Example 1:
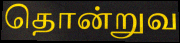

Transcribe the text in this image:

தொன்றுவ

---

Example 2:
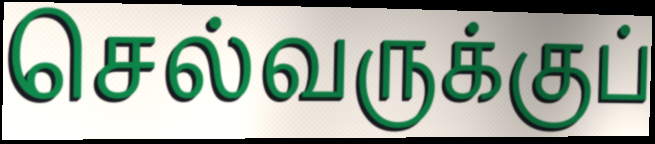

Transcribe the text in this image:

செல்வருக்குப்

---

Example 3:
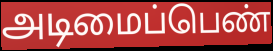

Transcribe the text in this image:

அடிமைப்பெண்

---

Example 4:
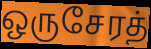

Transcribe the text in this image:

ஒருசேரத்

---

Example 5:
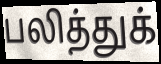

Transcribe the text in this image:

பலித்துக்